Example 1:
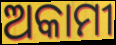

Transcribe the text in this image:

ଅକାମୀ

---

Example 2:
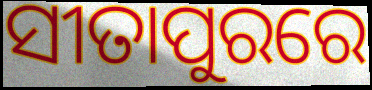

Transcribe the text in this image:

ସୀତାପୁରରେ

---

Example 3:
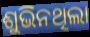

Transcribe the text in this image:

ଶୁଭିନଥିଲା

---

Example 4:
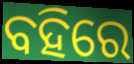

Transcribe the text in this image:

ବହିରେ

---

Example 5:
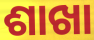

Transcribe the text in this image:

ଶାଖା